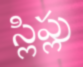
స్లిప్లు